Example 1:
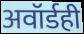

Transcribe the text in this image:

अवॉर्डही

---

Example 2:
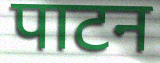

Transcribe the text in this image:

पाटन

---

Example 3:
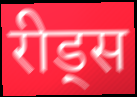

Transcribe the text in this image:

रीड्स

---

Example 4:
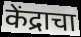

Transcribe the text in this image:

केंद्राचा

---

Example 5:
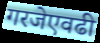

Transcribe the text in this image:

गरजेएवढी